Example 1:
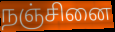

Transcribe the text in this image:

நஞ்சினை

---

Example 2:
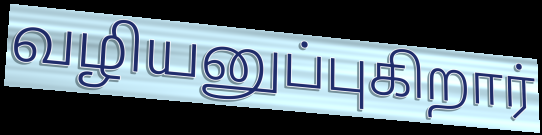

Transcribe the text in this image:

வழியனுப்புகிறார்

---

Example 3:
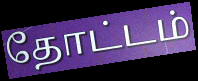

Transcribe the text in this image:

தோட்டம்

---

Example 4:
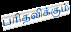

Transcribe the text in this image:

பரிதவிக்கும்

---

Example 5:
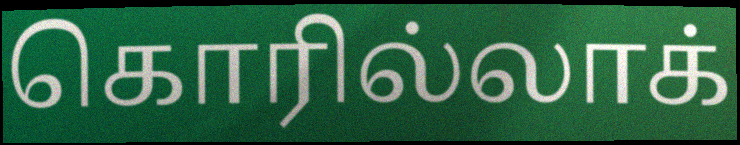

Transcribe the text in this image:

கொரில்லாக்